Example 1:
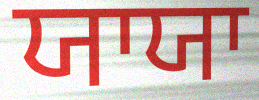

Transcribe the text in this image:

ਯਾਯਾ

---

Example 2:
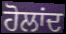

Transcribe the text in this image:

ਹੋਲਾਂਦ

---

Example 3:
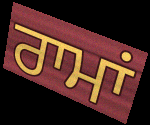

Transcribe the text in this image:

ਰਾਮਾਂ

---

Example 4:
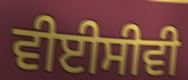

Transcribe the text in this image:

ਵੀਈਸੀਵੀ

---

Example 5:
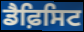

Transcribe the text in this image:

ਡੈਫ਼ਿਸਿਟ